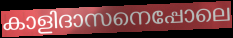
കാളിദാസനെപ്പോലെ